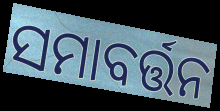
ସମାବର୍ତ୍ତନ